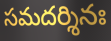
సమదర్శినః